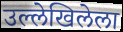
उल्लेखिलेला